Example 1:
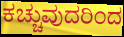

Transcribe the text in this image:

ಕಚ್ಚುವುದರಿಂದ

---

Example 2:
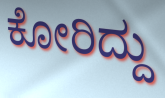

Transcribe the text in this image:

ಕೋರಿದ್ದು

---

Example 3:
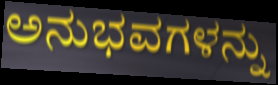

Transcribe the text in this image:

ಅನುಭವಗಳನ್ನು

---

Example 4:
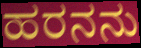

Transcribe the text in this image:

ಹರನನು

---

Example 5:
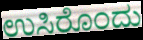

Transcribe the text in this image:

ಉಸಿರೊಂದು